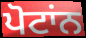
ਪੋਟਾਂਨ